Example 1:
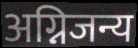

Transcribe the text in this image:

अग्निजन्य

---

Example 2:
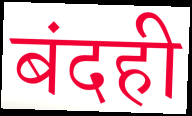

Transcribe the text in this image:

बंदही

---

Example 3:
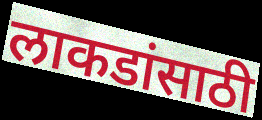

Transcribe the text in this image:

लाकडांसाठी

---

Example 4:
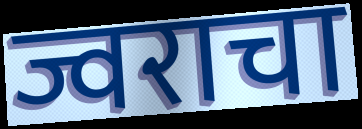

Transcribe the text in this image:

ज्वराचा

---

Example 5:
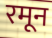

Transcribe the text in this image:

रमून